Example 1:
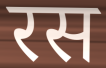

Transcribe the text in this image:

रस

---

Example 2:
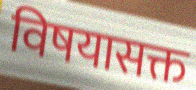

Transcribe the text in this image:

विषयासक्त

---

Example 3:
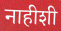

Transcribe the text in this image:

नाहीशी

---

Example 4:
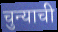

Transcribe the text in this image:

चुन्याची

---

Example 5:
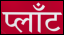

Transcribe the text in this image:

प्लाँट